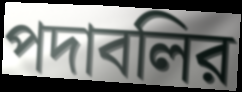
পদাবলির